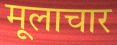
मूलाचार